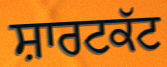
ਸ਼ਾਰਟਕੱਟ